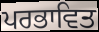
ਪਰਭਾਵਿਤ